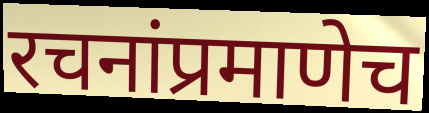
रचनांप्रमाणेच